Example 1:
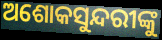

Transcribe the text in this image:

ଅଶୋକସୁନ୍ଦରୀଙ୍କୁ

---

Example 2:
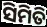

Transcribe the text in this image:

ସିମିତି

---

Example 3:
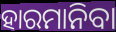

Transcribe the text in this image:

ହାରମାନିବା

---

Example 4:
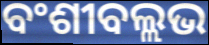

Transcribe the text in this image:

ବଂଶୀବଲ୍ଲଭ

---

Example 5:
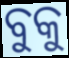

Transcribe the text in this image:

ବୁକୁ